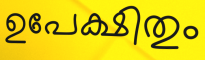
ഉപേക്ഷിതും